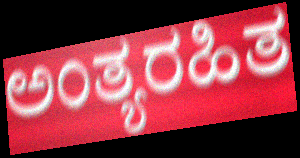
ಅಂತ್ಯರಹಿತ